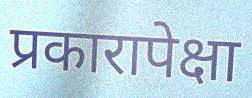
प्रकारापेक्षा